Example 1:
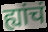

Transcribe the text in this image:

ह्यांचं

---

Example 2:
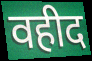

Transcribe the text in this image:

वहीद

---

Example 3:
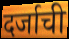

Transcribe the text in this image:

दर्जाची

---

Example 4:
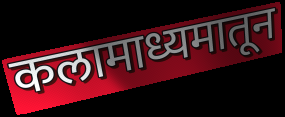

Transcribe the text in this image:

कलामाध्यमातून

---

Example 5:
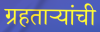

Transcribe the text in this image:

ग्रहताऱ्यांची